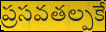
ప్రసవతల్పకే